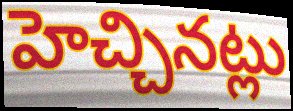
హెచ్చినట్లు